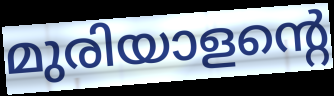
മുരിയാളന്റെ